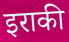
इराकी